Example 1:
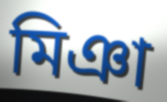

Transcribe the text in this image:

মিঞা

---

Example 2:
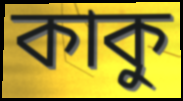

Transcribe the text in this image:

কাকু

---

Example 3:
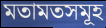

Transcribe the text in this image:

মতামতসমূহ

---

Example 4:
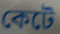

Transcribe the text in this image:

কেটে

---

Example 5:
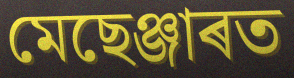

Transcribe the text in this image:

মেছেঞ্জাৰত